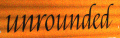
unrounded